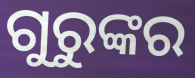
ଗୁରୁଙ୍କର